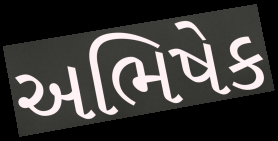
અભિષેક